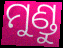
ମୁଣ୍ଡୁ